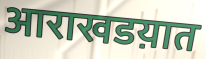
आराखडय़ात